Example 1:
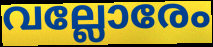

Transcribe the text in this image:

വല്ലോരേം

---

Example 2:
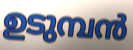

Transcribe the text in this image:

ഉടുമ്പൻ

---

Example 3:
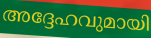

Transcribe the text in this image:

അദ്ദേഹവുമായി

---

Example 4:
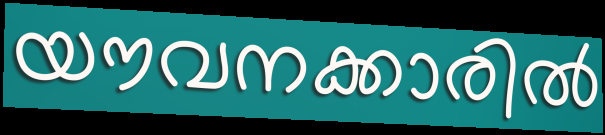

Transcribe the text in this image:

യൗവനക്കാരിൽ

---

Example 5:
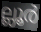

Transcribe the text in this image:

ല്ലൂർ